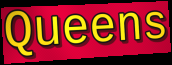
Queens